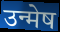
उन्मेष